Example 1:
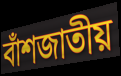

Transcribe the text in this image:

বাঁশজাতীয়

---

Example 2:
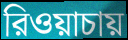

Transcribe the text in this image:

রিওয়াচায়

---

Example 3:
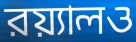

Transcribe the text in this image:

রয়্যালও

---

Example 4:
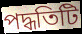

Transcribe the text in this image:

পদ্ধতিটি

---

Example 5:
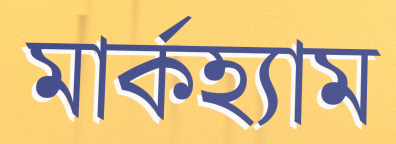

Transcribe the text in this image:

মার্কহ্যাম